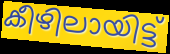
കീഴിലായിട്ട്